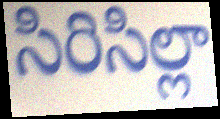
సిరిసిల్లా